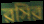
রসির